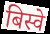
बिस्वे